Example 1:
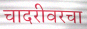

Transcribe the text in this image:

चादरीवरचा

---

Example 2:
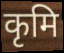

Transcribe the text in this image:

कृमि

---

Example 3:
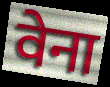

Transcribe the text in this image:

वेना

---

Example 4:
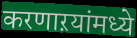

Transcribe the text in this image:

करणाऱयांमध्ये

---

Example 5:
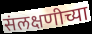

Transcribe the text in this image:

संलक्षणीच्या